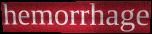
hemorrhage